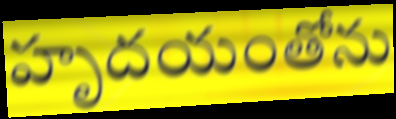
హృదయంతోను